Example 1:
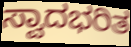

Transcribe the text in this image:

ಸ್ವಾದಭರಿತ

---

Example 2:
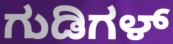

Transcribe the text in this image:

ಗುಡಿಗಳ್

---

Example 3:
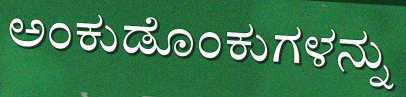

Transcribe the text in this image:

ಅಂಕುಡೊಂಕುಗಳನ್ನು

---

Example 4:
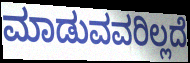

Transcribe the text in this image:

ಮಾಡುವವರಿಲ್ಲದೆ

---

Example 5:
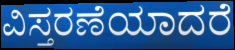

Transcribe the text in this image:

ವಿಸ್ತರಣೆಯಾದರೆ